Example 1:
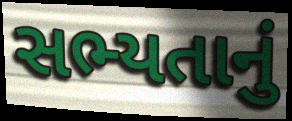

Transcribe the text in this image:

સભ્યતાનું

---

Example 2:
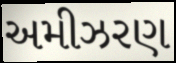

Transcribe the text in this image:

અમીઝરણ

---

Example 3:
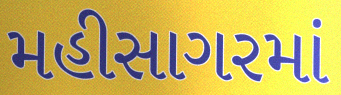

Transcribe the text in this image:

મહીસાગરમાં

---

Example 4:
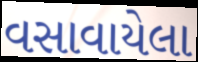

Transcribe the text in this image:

વસાવાયેલા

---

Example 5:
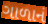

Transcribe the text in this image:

ગાળાનં